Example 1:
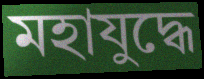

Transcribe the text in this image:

মহাযুদ্ধে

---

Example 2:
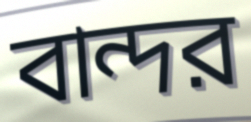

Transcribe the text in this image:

বান্দর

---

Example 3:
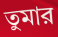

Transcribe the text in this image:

তুমার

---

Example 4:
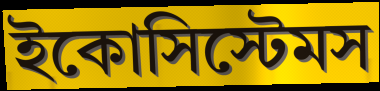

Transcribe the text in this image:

ইকোসিস্টেমস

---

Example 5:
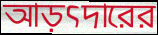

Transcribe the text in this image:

আড়ৎদারের